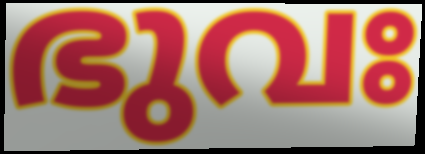
ഭുവഃ